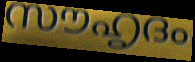
സൗഹൃദം